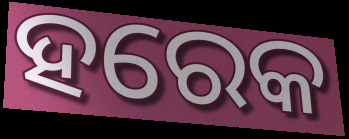
ହରେକ